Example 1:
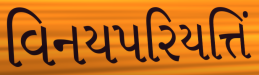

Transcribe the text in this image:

વિનયપરિયત્તિં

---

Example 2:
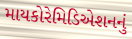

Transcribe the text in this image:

માયકોરેમિડિએશનનું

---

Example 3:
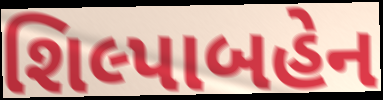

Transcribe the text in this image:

શિલ્પાબહેન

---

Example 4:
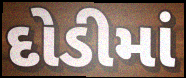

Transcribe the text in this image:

દોડીમાં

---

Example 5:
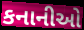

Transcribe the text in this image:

કનાનીઓ